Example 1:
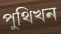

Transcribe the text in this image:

পুথিখন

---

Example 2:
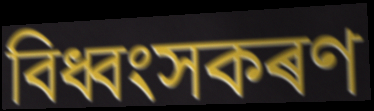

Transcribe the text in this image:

বিধ্বংসকৰণ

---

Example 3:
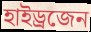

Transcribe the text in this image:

হাইড্ৰজেন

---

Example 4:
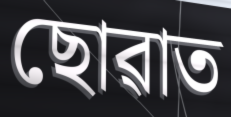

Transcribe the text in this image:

ছোৱাত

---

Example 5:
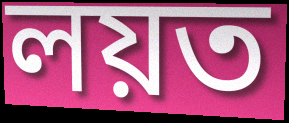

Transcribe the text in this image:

লয়ত